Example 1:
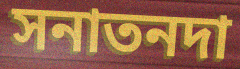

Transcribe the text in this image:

সনাতনদা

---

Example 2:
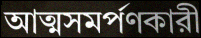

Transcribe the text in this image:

আত্মসমর্পণকারী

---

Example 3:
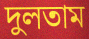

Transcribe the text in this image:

দুলতাম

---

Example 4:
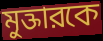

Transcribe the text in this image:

মুক্তারকে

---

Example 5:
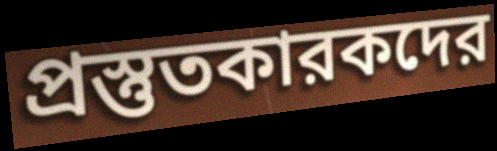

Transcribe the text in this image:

প্রস্তুতকারকদের